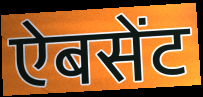
ऐबसेंट